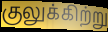
குலுக்கிற்று